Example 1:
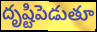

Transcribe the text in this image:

దృష్టిపెడుతూ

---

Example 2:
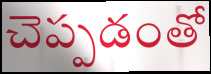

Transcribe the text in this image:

చెప్పడంతో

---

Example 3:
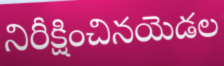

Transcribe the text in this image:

నిరీక్షించినయెడల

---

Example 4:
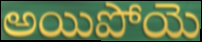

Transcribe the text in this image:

అయిపోయె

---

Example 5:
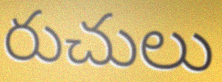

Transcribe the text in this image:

రుచులు